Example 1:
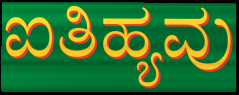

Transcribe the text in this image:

ಐತಿಹ್ಯವು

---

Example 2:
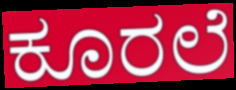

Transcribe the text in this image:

ಕೂರಲೆ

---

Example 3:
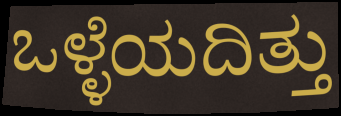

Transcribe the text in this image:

ಒಳ್ಳೆಯದಿತ್ತು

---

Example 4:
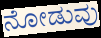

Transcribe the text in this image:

ನೋಡುವು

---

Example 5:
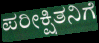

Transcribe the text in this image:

ಪರೀಕ್ಷಿತನಿಗೆ